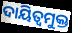
ଦାୟିତ୍ବମୁକ୍ତ